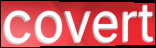
covert